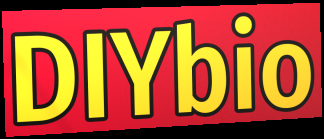
DIYbio